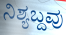
ನಿಶ್ಯಬ್ದವು